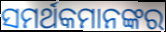
ସମର୍ଥକମାନଙ୍କର